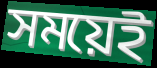
সময়েই